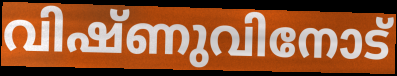
വിഷ്ണുവിനോട്